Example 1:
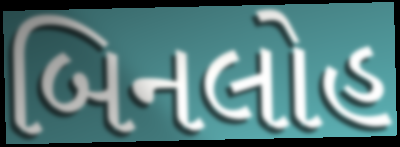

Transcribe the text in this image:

બિનલોહ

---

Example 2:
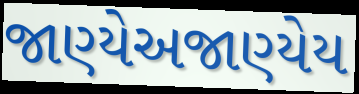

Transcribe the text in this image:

જાણ્યેઅજાણ્યેય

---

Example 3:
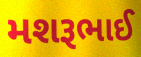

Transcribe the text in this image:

મશરૂભાઈ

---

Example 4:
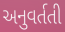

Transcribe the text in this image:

અનુવર્તતી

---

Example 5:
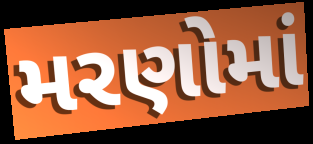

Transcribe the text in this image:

મરણોમાં